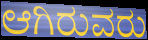
ಆಗಿರುವರು